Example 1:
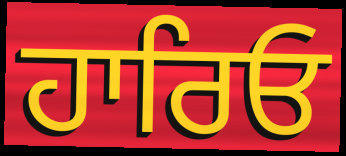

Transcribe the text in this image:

ਹਾਰਿਓ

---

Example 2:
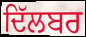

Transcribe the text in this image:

ਦਿੱਲਬਰ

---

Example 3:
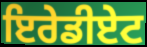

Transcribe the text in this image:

ਇਰੇਡੀਏਟ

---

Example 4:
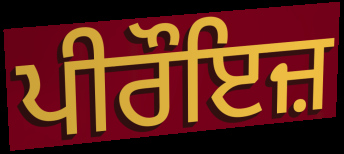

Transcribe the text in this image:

ਪੀਰੌਇਜ਼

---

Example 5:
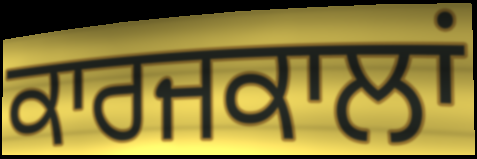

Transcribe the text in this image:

ਕਾਰਜਕਾਲਾਂ